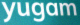
yugam